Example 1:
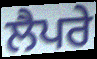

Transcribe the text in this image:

ਲੈਪਰੇ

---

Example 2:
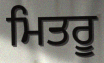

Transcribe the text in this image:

ਮਿਤਰੂ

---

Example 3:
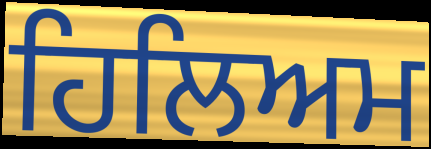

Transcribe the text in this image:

ਹਿਲਿਅਮ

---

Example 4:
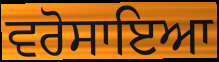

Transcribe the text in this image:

ਵਰੋਸਾਇਆ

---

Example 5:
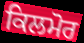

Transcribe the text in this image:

ਕਿਲਮੋਰ